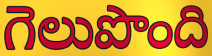
గెలుపొంది